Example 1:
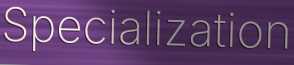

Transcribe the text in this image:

Specialization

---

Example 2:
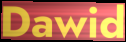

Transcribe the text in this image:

Dawid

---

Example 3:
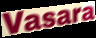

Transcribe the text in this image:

Vasara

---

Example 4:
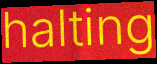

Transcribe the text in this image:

halting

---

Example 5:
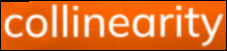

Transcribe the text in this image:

collinearity